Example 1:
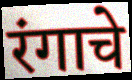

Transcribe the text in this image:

रंगाचे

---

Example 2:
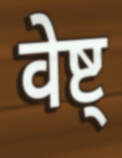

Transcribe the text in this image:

वेष्ट्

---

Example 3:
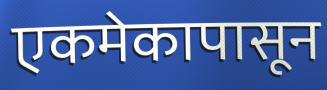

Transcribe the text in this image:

एकमेकापासून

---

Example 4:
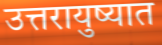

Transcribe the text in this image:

उत्तरायुष्यात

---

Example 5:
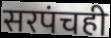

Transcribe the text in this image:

सरपंचही